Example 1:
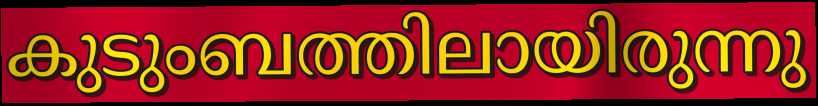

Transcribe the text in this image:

കുടുംബത്തിലായിരുന്നു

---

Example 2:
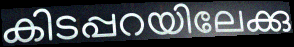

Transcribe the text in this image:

കിടപ്പറയിലേക്കു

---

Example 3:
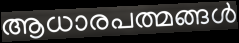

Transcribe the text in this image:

ആധാരപത്മങ്ങൾ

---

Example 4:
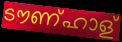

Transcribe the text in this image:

ടൗണ്ഹാള്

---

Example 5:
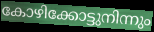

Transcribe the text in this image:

കോഴിക്കോട്ടുനിന്നും